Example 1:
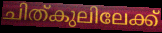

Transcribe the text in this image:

ചിത്കുലിലേക്ക്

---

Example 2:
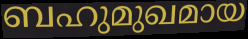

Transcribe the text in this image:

ബഹുമുഖമായ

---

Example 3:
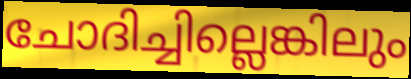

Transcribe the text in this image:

ചോദിച്ചില്ലെങ്കിലും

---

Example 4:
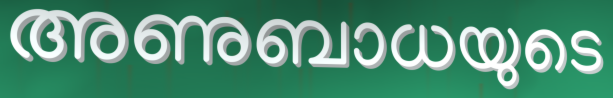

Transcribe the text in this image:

അണുബാധയുടെ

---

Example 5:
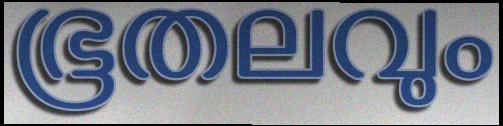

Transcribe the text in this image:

ഭൂതലവും